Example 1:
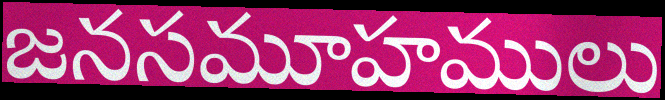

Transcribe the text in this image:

జనసమూహములు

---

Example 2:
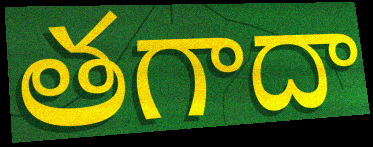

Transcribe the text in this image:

తగాదా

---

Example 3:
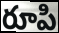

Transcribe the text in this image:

రూపి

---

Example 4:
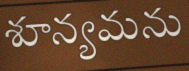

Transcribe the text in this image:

శూన్యమను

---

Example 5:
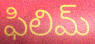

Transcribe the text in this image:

ఫిలిమ్